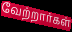
வேற்றார்கள்